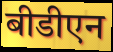
बीडीएन